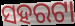
ସହରଟା